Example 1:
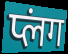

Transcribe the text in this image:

प्लंग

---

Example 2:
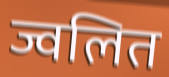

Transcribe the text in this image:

ज्वलित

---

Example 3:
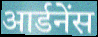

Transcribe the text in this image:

आर्डनेंस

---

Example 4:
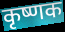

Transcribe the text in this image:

कृष्णक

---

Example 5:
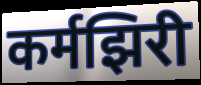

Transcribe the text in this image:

कर्मझिरी